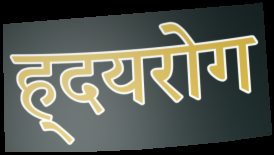
ह्दयरोग